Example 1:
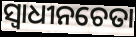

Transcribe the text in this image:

ସ୍ବାଧୀନଚେତା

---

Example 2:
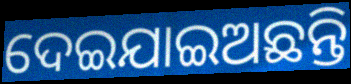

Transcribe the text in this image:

ଦେଇଯାଇଅଛନ୍ତି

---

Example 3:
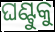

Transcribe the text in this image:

ଘଣ୍ଟୁକୁ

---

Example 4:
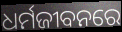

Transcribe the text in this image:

ଧର୍ମଜୀବନରେ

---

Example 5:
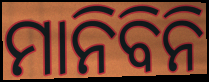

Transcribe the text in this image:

ମାନିବିନି